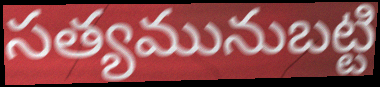
సత్యమునుబట్టి